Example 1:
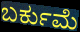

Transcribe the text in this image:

ಬರ್ಕುಮೆ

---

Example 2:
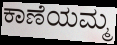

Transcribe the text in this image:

ಕಾಣೆಯಮ್ಮ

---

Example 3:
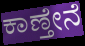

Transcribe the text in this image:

ಕಾಣ್ತೇನೆ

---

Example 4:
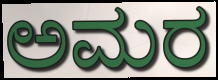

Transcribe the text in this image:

ಅಮರ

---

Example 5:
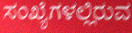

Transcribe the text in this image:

ಸಂಖ್ಯೆಗಳಲ್ಲಿರುವ